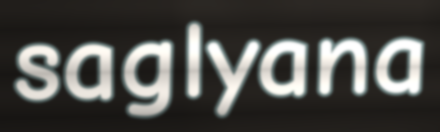
saglyana